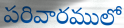
పరివారములో